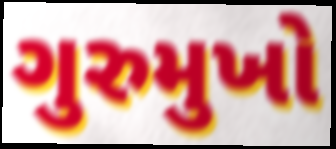
ગુરુમુખો